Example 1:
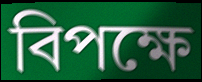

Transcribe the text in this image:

বিপক্ষে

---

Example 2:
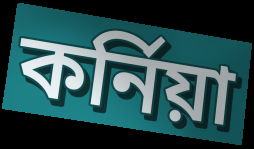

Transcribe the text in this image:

কৰ্নিয়া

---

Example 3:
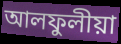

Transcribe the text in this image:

আলফুলীয়া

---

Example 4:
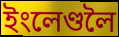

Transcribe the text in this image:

ইংলেণ্ডলৈ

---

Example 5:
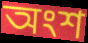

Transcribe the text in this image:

অংশ